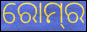
ରୋମ୍‍ର